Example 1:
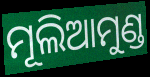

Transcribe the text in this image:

ମୂଲିଆମୁଣ୍ଡ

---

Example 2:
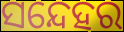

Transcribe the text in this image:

ସନ୍ଦେହର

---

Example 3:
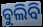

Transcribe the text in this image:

ବୁଲିବି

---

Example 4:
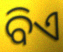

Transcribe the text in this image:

ବିଏ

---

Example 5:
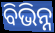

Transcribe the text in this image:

ବିଭିନ୍ନ